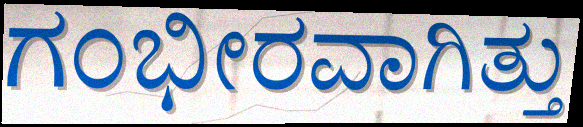
ಗಂಭೀರವಾಗಿತ್ತು